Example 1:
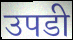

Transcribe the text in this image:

उपडी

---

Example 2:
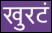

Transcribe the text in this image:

खुरटं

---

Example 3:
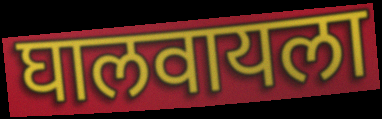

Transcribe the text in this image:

घालवायला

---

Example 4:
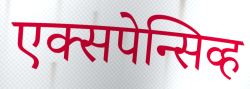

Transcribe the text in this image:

एक्सपेन्सिव्ह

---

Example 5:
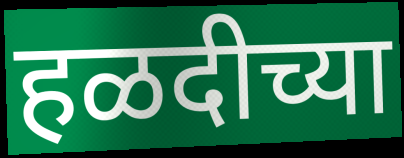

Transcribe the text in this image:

हळदीच्या